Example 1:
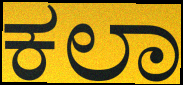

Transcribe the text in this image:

ಕಲಾ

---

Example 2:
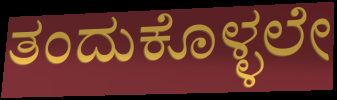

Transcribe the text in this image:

ತಂದುಕೊಳ್ಳಲೇ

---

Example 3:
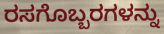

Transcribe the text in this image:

ರಸಗೊಬ್ಬರಗಳನ್ನು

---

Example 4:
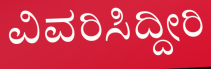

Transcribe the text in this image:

ವಿವರಿಸಿದ್ದೀರಿ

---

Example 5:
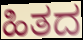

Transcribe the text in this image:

ಹಿತದ